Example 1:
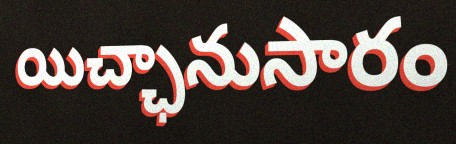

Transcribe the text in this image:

యిచ్ఛానుసారం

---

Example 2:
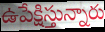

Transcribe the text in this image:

ఉపేక్షిస్తున్నారు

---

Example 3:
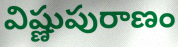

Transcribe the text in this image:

విష్ణుపురాణం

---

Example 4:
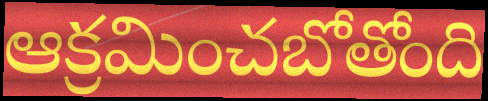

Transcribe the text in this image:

ఆక్రమించబోతోంది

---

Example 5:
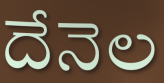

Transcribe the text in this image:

దేనెల